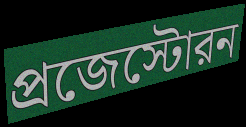
প্রজেস্টোরন